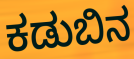
ಕಡುಬಿನ